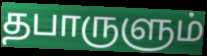
தபாருளும்